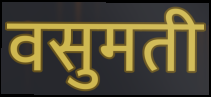
वसुमती